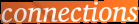
connections